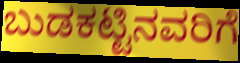
ಬುಡಕಟ್ಟಿನವರಿಗೆ